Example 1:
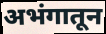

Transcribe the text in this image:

अभंगातून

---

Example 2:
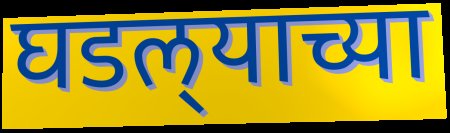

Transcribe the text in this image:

घडल्याच्या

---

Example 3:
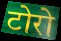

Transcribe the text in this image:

टोरो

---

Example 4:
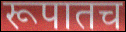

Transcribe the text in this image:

रूपातच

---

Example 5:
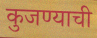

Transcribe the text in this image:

कुजण्याची